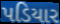
પડિયાર